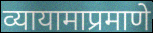
व्यायामाप्रमाणे